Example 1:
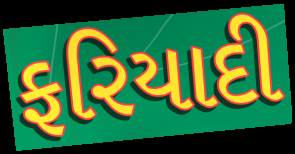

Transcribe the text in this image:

ફરિયાદી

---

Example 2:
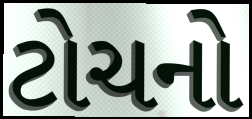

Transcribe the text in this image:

ટોચનો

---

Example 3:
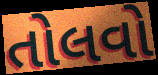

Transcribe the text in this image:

તોલવો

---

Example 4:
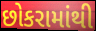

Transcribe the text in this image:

છોકરામાંથી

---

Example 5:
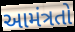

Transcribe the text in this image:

આમંત્રતો